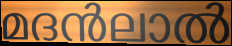
മദൻലാൽ